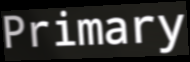
Primary